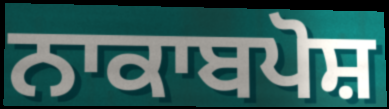
ਨਾਕਾਬਪੋਸ਼